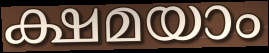
ക്ഷമയാം